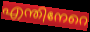
എന്തിനേറെ